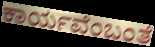
ಕಾರ್ಯವೆಂಬಂತೆ